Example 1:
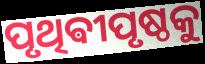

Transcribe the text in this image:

ପୃଥିଵୀପୃଷ୍ଠକୁ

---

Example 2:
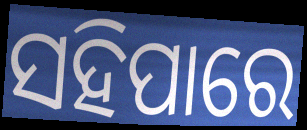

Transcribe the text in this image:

ସହିପାରେ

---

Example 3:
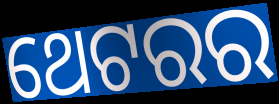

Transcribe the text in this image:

ଥେଟରର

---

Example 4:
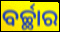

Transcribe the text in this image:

ବର୍ଚ୍ଛାର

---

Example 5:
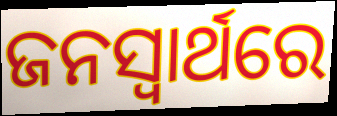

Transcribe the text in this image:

ଜନସ୍ୱାର୍ଥରେ